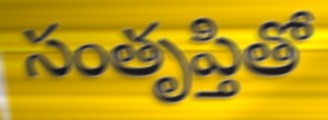
సంతృప్తితో